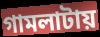
গামলাটায়